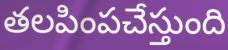
తలపింపచేస్తుంది